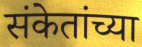
संकेतांच्या